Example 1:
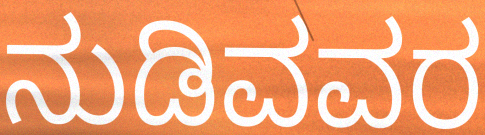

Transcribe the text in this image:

ನುಡಿವವರ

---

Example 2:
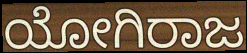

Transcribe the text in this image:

ಯೋಗಿರಾಜ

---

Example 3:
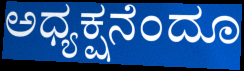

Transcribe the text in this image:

ಅಧ್ಯಕ್ಷನೆಂದೂ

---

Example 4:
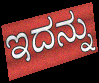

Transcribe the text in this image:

ಇದನ್ನು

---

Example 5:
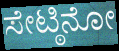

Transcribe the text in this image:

ಸೇಟ್ಠಿನೋ